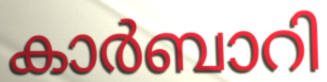
കാർബാറി